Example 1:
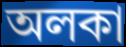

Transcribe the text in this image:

অলকা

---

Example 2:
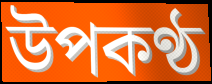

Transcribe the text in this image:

উপকণ্ঠ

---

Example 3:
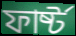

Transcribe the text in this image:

ফাৰ্ষ্ট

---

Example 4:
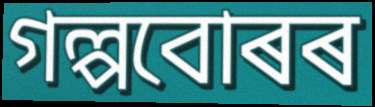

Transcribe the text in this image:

গল্পবোৰৰ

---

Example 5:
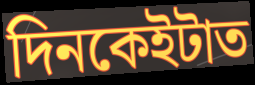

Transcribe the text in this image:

দিনকেইটাত